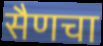
सैणचा